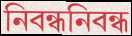
নিবন্ধনিবন্ধ